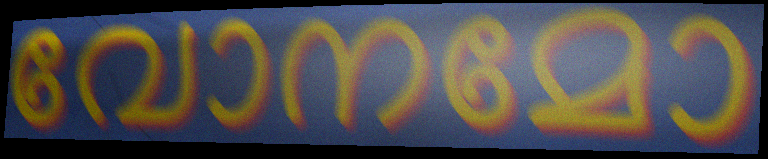
വോനമോ